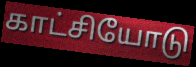
காட்சியோடு